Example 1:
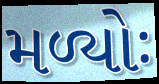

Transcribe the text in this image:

મળ્યોઃ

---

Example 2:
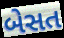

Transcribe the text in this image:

બેસત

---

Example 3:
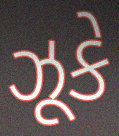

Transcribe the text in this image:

ઝૂકે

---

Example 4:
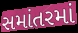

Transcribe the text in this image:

સમાંતરમાં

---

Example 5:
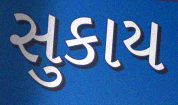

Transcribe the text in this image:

સુકાય